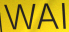
WAI